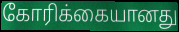
கோரிக்கையானது